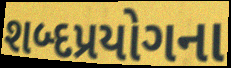
શબ્દપ્રયોગના